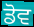
ਡੋਵ